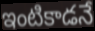
ఇంటికాడనే